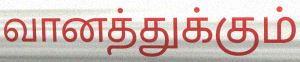
வானத்துக்கும்